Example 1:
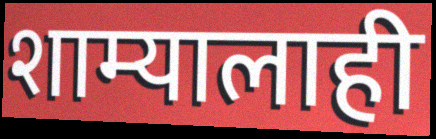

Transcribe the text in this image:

शाम्यालाही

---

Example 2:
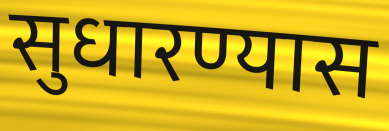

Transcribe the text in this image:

सुधारण्यास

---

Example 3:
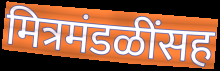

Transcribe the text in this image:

मित्रमंडळींसह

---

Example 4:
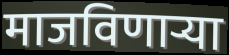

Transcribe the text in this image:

माजविणाऱ्या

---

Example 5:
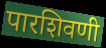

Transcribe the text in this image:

पारशिवणी